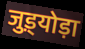
जुड़्योड़ा